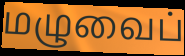
மழுவைப்